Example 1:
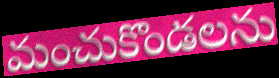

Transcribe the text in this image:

మంచుకొండలను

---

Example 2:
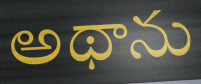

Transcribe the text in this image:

అథాను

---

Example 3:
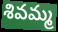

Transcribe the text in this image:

శివమ్మ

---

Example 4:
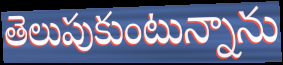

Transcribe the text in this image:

తెలుపుకుంటున్నాను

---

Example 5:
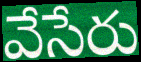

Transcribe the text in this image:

వేసేరు